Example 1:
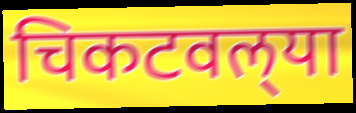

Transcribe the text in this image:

चिकटवल्या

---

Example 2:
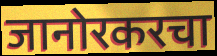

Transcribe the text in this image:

जानोरकरचा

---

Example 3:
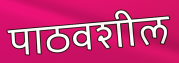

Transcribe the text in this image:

पाठवशील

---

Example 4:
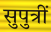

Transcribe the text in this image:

सुपुत्रीं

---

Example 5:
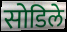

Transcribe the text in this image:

सोडिले